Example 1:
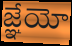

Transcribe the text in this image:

జ్ఞేయో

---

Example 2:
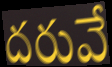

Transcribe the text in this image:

దరువే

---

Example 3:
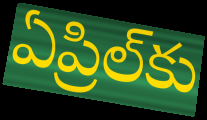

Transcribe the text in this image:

ఏప్రిల్‌కు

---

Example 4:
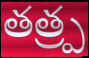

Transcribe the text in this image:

తత్ర్ప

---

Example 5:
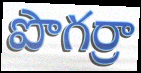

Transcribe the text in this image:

పొగర్రా